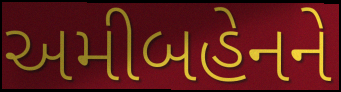
અમીબહેનને